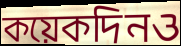
কয়েকদিনও